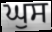
ਘੁਸ